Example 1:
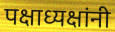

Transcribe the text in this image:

पक्षाध्यक्षांनी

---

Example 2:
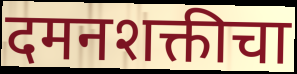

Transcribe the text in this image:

दमनशक्तीचा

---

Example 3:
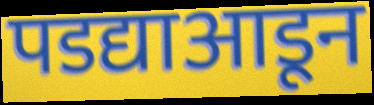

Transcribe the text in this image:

पडद्याआडून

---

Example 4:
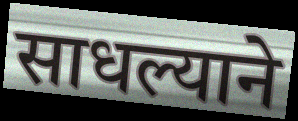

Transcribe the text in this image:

साधल्याने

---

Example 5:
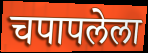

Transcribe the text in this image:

चपापलेला